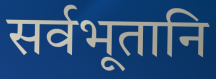
सर्वभूतानि